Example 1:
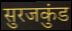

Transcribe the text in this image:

सुरजकुंड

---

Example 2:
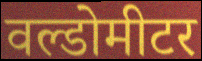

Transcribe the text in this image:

वल्डोमीटर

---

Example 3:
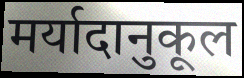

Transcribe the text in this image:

मर्यादानुकूल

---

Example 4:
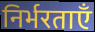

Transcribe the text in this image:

निर्भरताएँ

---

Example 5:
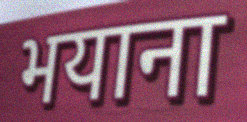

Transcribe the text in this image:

भयाना